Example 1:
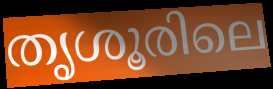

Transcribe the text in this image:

തൃശൂരിലെ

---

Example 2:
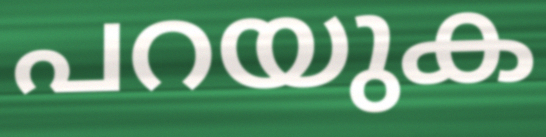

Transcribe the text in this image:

പറയുക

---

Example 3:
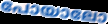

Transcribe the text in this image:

പോയാലോ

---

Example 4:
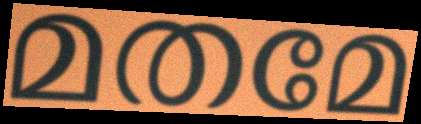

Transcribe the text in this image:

മതമേ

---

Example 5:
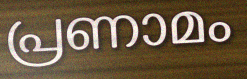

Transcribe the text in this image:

പ്രണാമം